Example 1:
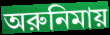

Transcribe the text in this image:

অরুনিমায়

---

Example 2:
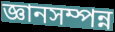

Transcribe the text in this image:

জ্ঞানসম্পন্ন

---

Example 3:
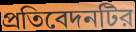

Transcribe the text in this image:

প্রতিবেদনটির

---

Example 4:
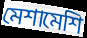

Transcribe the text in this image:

মেশামেশি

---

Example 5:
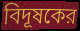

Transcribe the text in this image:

বিদূষকের